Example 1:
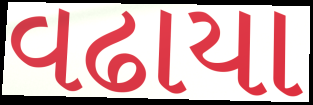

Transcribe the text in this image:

વઢાયા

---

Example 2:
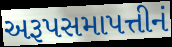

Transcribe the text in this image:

અરૂપસમાપત્તીનં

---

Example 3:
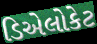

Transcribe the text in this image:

ડિએલોકેટ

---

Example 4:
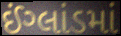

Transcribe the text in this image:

ઈંગ્લાંડમાં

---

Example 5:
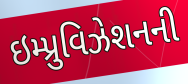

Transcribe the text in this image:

ઇમ્પ્રુવિઝેશનની